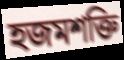
হজমশক্তি